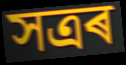
সত্ৰৰ